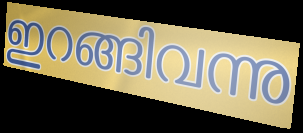
ഇറങ്ങിവന്നു